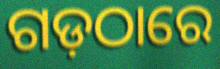
ଗଡ଼ଠାରେ